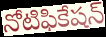
నోటిఫికేషన్